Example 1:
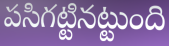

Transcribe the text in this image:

పసిగట్టినట్టుంది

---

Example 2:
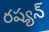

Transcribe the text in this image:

రష్యన్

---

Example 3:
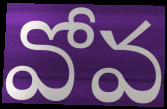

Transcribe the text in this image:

వోవ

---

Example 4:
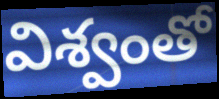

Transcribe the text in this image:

విశ్వంతో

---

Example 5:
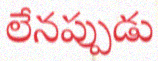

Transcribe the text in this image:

లేనప్పుడు